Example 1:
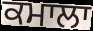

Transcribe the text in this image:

ਕਮਾਲਾ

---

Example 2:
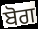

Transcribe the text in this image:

ਬੋਗ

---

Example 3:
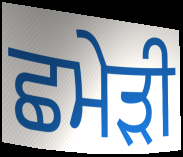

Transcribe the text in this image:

ਛਮੇੜੀ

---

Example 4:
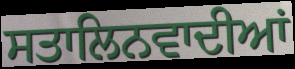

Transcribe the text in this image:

ਸਤਾਲਿਨਵਾਦੀਆਂ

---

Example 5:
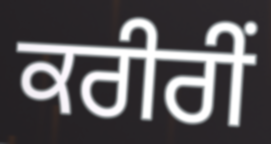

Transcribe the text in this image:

ਕਰੀਰੀਂ